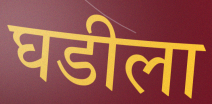
घडीला